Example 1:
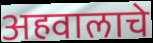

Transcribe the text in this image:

अहवालाचे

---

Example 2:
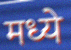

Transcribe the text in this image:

मध्ये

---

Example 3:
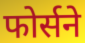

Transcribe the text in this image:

फोर्सने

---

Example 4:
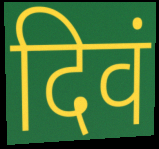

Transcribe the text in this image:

दिवं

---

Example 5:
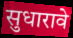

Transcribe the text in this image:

सुधारावे